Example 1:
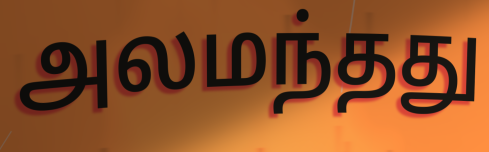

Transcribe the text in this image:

அலமந்தது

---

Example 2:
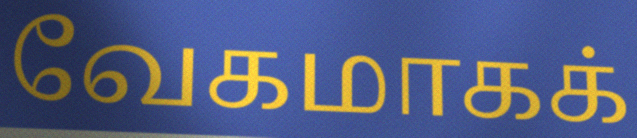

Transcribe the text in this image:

வேகமாகக்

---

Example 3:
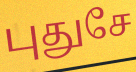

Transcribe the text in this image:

புதுசே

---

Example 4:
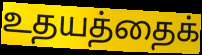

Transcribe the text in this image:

உதயத்தைக்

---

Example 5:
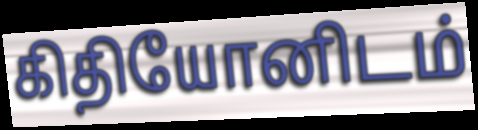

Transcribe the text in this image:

கிதியோனிடம்